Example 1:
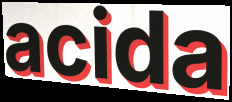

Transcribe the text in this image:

acida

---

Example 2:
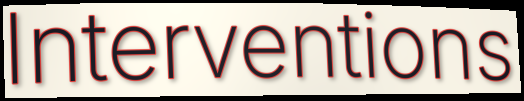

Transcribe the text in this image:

Interventions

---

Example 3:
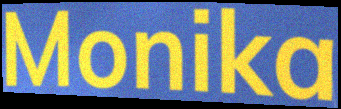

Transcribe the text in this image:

Monika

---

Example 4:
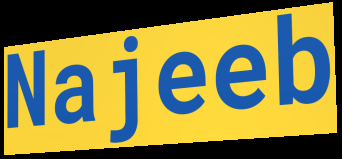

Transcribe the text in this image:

Najeeb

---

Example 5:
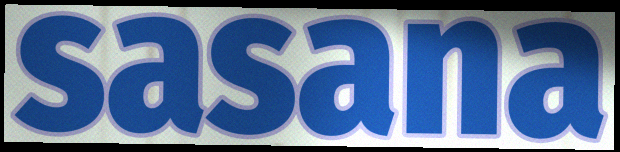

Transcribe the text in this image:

sasana